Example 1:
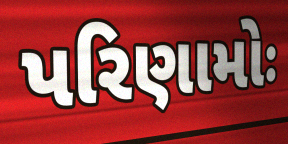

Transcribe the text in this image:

પરિણામોઃ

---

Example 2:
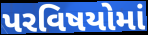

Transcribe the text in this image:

પરવિષયોમાં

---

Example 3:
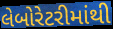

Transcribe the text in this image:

લેબોરેટરીમાંથી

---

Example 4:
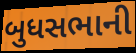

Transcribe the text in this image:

બુધસભાની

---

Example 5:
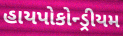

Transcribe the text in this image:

હાયપોકોન્ડ્રીયમ